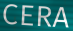
CERA